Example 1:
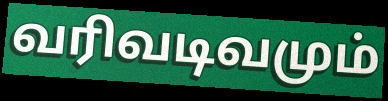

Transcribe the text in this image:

வரிவடிவமும்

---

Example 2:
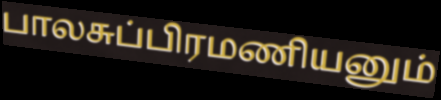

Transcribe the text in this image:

பாலசுப்பிரமணியனும்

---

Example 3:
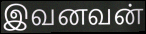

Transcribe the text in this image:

இவனவன்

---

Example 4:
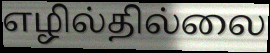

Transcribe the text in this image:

எழில்தில்லை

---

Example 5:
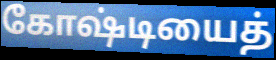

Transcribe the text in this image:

கோஷ்டியைத்